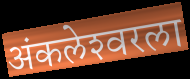
अंकलेश्वरला